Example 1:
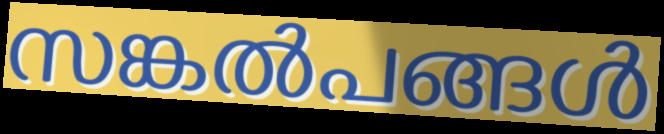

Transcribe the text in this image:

സങ്കൽപങ്ങൾ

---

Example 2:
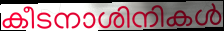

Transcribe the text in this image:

കീടനാശിനികൾ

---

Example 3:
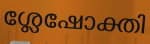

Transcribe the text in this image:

ശ്ലേഷോക്തി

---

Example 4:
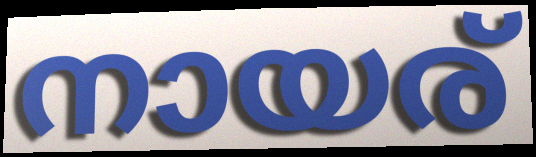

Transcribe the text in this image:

നായര്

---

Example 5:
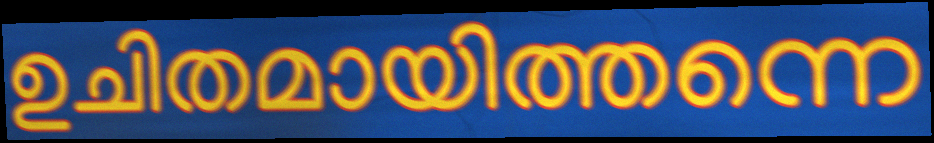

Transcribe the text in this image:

ഉചിതമായിത്തന്നെ